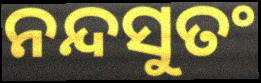
ନନ୍ଦସୁତଂ